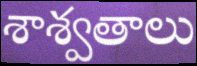
శాశ్వతాలు